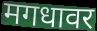
मगधावर